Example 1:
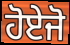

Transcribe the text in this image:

ਹੋਏਜੋ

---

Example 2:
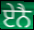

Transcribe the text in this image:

ਏਨੈ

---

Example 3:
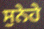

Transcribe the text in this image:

ਸੁਨੇਹੇ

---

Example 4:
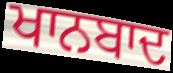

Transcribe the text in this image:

ਖਾਨਬਾਦ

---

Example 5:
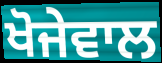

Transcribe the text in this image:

ਖੋਜੇਵਾਲ